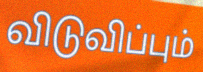
விடுவிப்பும்